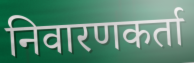
निवारणकर्ता